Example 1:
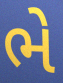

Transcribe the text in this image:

ભે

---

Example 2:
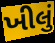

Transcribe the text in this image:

ખીલું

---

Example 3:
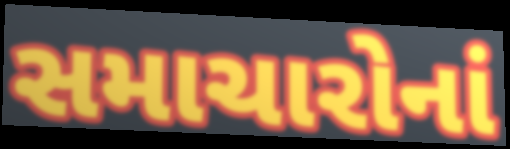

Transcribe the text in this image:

સમાચારોનાં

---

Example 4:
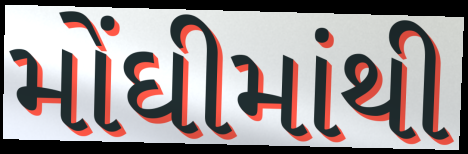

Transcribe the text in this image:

મોંઘીમાંથી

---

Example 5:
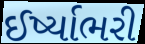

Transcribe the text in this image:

ઈર્ષ્યાભરી